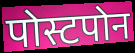
पोस्टपोन